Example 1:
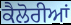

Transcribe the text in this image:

ਕੈਲੋਰੀਆਂ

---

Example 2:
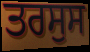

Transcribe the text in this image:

ਤਰਸੁਸ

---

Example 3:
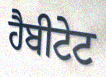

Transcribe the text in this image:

ਹੈਬੀਟੇਟ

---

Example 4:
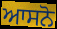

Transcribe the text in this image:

ਆਸਨੋ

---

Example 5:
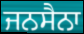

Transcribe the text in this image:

ਜਨਸੈਨਾ